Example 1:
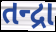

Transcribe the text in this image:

તન્દ્રા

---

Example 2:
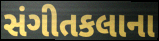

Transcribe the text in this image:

સંગીતકલાના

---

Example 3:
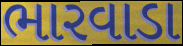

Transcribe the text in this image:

ભારવાડા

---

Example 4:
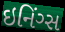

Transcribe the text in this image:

ઇનિંગ્સ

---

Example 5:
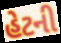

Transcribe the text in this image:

હેટની